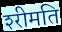
श्रीमति